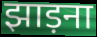
झाड़ना